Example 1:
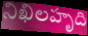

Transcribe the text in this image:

నిఖిలహృది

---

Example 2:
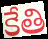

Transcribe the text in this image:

కేతి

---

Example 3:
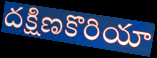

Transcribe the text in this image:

దక్షిణకొరియా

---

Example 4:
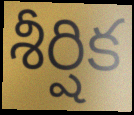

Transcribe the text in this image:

శీర్షిక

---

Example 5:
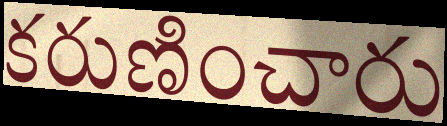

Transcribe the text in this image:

కరుణించారు